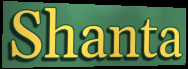
Shanta